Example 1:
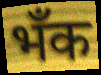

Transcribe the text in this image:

भँक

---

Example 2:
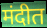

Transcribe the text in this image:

मंदीत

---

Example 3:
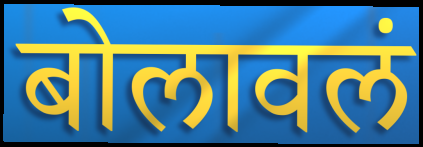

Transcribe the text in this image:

बोलावलं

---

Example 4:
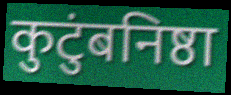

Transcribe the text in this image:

कुटुंबनिष्ठा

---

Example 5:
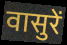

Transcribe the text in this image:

वासुरें